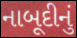
નાબૂદીનું